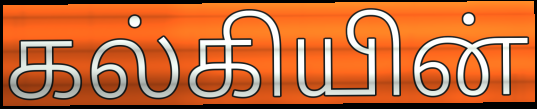
கல்கியின்